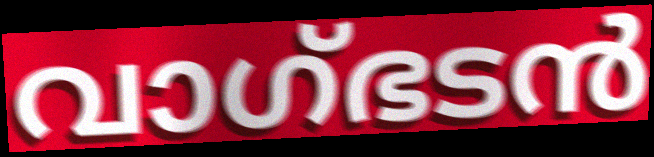
വാഗ്ഭടൻ